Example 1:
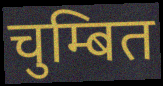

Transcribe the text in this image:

चुम्बित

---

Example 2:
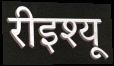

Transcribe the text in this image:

रीइश्यू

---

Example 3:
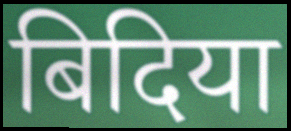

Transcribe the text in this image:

बिदिया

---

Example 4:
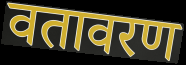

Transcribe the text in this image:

वतावरण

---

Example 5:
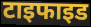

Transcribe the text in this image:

टाइफाइड